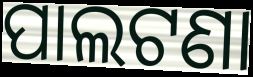
ପାଲଟଣା